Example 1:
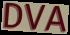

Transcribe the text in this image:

DVA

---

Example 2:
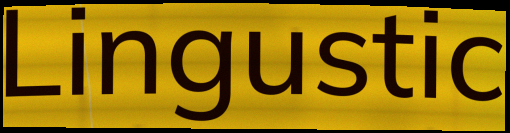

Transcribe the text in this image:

Lingustic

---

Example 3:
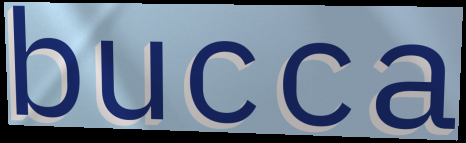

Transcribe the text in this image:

bucca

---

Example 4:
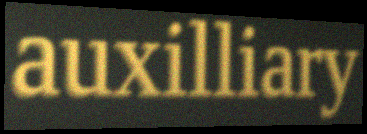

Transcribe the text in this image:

auxilliary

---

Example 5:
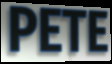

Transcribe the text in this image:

PETE